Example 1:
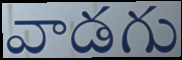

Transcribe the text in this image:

వాడగు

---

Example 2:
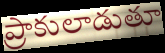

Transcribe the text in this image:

ప్రాకులాడుతూ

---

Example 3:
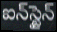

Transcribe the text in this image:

ఐన్‌స్టైన్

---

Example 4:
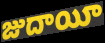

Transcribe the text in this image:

జుదాయీ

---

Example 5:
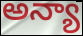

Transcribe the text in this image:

అన్యా